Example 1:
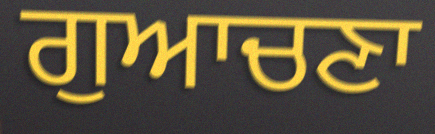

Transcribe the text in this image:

ਗੁਆਚਣਾ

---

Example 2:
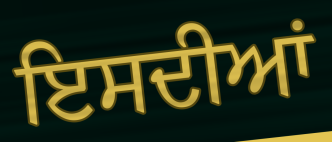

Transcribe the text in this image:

ਇਸਦੀਆਂ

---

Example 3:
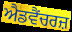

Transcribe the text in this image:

ਐਡਵੈਂਚਰਜ਼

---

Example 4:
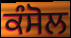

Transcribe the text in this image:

ਕੰਸੋਲ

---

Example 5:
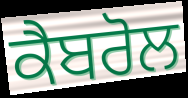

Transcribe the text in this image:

ਕੈਬਰੋਲ